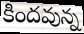
కిందవున్న